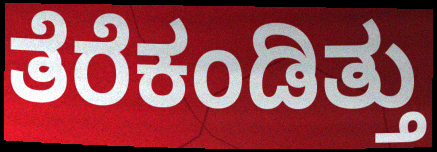
ತೆರೆಕಂಡಿತ್ತು